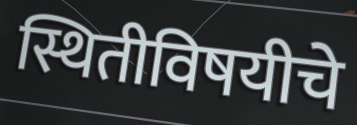
स्थितीविषयीचे